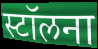
स्टॉलना